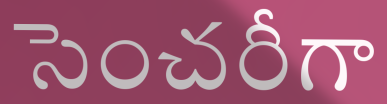
సెంచరీగా